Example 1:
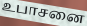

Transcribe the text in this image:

உபாசனை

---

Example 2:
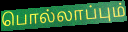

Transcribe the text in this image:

பொல்லாப்பும்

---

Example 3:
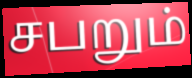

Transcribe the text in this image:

சபறும்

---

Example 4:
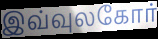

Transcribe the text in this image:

இவ்வுலகோர்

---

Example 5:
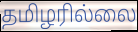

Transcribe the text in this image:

தமிழரில்லை